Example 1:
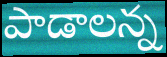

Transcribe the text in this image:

పాడాలన్న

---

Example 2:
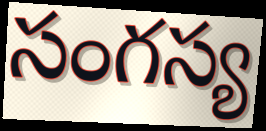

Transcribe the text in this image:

సంగస్య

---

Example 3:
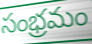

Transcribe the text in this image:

సంభ్రమం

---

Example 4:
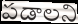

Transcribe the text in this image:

పడాలని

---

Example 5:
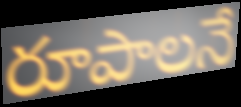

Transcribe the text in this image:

రూపాలనే